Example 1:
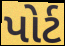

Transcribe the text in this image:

પોર્ટ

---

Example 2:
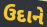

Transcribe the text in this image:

ઉદાને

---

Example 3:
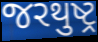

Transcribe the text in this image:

જરથુષ્ટ્ર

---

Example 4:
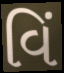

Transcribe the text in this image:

વિં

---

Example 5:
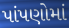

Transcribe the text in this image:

પાંપણોમાં